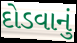
દોડવાનું